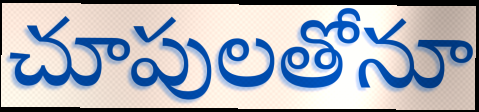
చూపులతోనూ